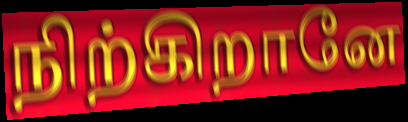
நிற்கிறானே